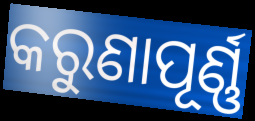
କରୁଣାପୂର୍ଣ୍ଣ